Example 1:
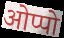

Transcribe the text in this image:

ओप्पो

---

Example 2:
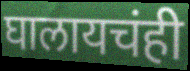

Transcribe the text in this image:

घालायचंही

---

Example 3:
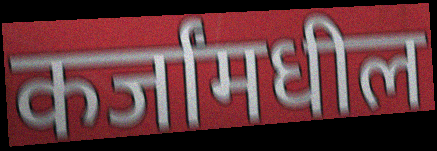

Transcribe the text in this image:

कर्जांमधील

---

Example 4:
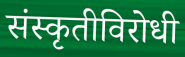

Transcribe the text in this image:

संस्कृतीविरोधी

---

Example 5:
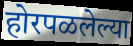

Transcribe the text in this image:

होरपळलेल्या